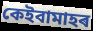
কেইবামাহৰ